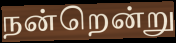
நன்றென்று